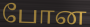
போன